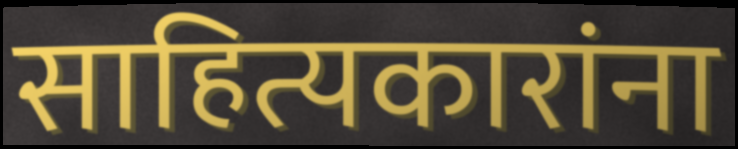
साहित्यकारांना